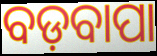
ବଡ଼ବାପା